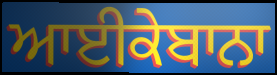
ਆਈਕੇਬਾਨਾ